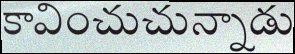
కావించుచున్నాడు